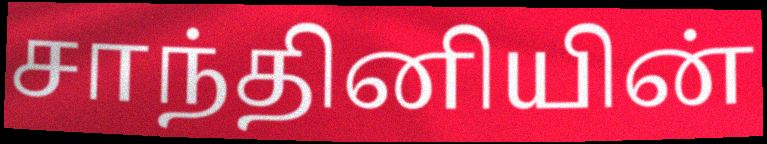
சாந்தினியின்